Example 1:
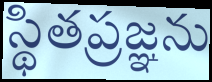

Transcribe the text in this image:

స్థితప్రజ్ఞను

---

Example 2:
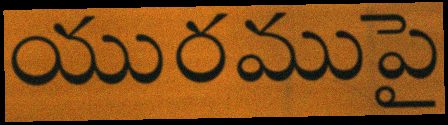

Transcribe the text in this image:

యురముపై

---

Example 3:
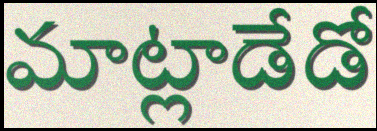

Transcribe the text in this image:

మాట్లాడేడో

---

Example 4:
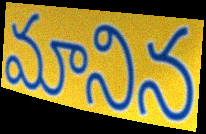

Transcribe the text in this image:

మానిన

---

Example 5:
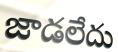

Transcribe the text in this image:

జాడలేదు